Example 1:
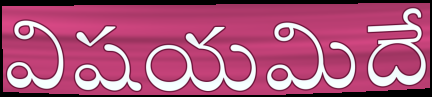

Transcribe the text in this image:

విషయమిదే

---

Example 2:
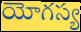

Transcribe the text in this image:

యోగస్య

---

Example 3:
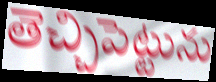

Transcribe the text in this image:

తెచ్చిపెట్టును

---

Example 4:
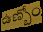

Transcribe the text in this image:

ఉణ్బోం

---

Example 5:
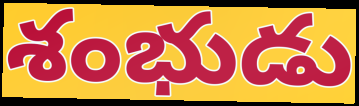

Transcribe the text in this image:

శంభుడు